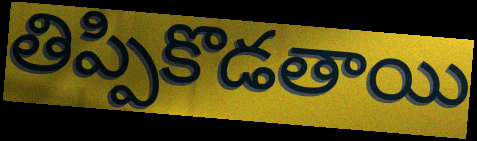
తిప్పికొడతాయి